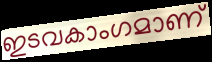
ഇടവകാംഗമാണ്